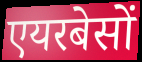
एयरबेसों